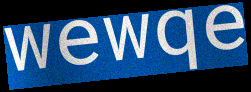
wewqe